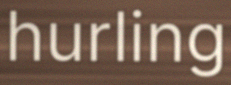
hurling